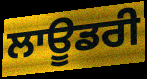
ਲਾਊਡਰੀ